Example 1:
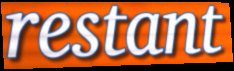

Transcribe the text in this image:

restant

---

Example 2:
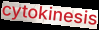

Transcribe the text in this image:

cytokinesis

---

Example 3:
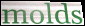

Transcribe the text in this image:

molds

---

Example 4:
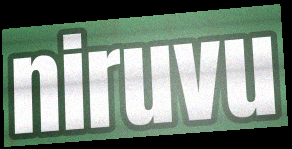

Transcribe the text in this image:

niruvu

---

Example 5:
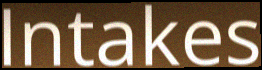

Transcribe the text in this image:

Intakes